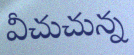
వీచుచున్న